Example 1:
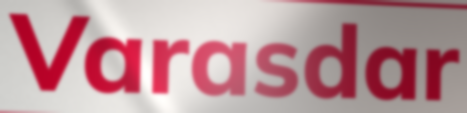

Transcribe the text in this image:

Varasdar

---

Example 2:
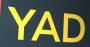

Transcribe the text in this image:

YAD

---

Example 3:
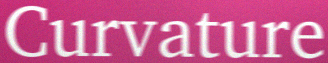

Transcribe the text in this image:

Curvature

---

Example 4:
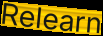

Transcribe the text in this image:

Relearn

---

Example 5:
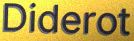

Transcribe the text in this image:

Diderot